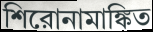
শিরোনামাঙ্কিত